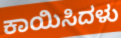
ಕಾಯಿಸಿದಳು